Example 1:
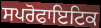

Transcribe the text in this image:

ਸਪਰੋਫਾਇਟਿਕ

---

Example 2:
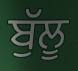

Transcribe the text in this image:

ਬੁੱਲੂ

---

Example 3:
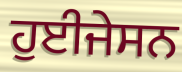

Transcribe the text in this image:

ਹੁਈਜੇਸਨ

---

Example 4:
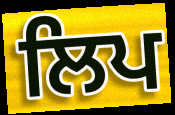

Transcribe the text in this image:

ਲਿਪ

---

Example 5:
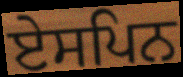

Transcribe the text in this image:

ਏਸਪਿਨ